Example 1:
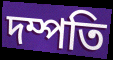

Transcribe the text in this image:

দম্পতি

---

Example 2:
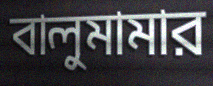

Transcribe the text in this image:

বালুমামার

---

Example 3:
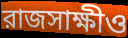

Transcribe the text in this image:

রাজসাক্ষীও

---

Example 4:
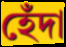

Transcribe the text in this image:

হেঁদা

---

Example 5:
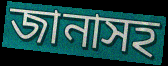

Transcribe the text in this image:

জানাসহ